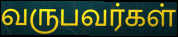
வருபவர்கள்